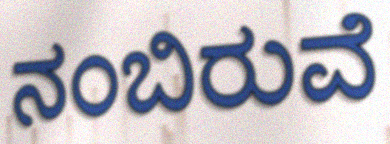
ನಂಬಿರುವೆ